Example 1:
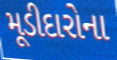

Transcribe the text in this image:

મૂડીદારોના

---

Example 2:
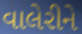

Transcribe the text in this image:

વાલેરીને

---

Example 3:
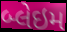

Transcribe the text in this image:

બ્લેઇમ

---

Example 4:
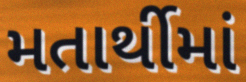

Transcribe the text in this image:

મતાર્થીમાં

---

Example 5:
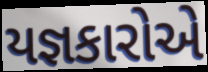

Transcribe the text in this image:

યજ્ઞકારોએ